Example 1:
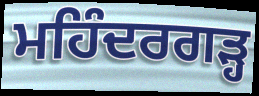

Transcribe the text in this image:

ਮਹਿੰਦਰਗੜ੍ਹ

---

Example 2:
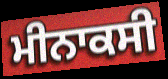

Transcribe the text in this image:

ਮੀਨਾਕਸੀ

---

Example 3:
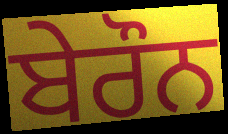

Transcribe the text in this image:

ਬੇਰੌਨ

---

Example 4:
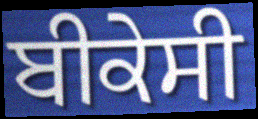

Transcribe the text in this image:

ਬੀਕੇਸੀ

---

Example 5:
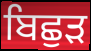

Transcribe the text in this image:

ਬਿਛੁੜ